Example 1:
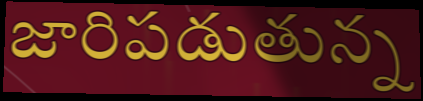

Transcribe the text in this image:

జారిపడుతున్న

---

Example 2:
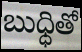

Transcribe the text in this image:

బుధ్ధితో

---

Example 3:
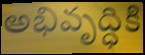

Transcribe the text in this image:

అభివృద్ధికి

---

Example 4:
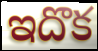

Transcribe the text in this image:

ఇదొక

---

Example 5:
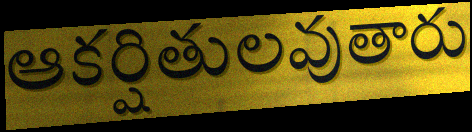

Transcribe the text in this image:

ఆకర్షితులవుతారు